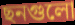
ছনগুলো